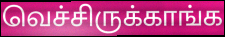
வெச்சிருக்காங்க